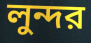
লুন্দর